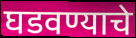
घडवण्याचे